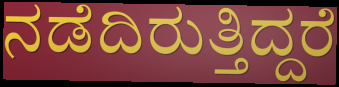
ನಡೆದಿರುತ್ತಿದ್ದರೆ